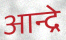
आन्द्रे